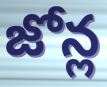
జోన్ల